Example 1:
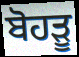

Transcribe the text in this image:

ਬੋਹੜੂ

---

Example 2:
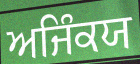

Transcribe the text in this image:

ਅਜਿੰਕਯ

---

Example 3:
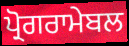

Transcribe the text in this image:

ਪ੍ਰੋਗਰਾਮੇਬਲ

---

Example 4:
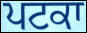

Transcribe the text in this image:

ਪਟਕਾ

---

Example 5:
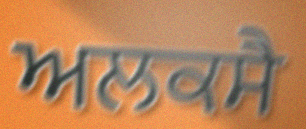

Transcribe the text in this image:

ਅਲਕਸੈ